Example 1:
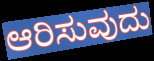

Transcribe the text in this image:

ಆರಿಸುವುದು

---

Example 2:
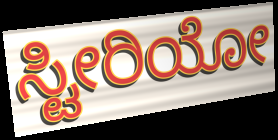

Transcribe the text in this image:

ಸ್ಟೀರಿಯೋ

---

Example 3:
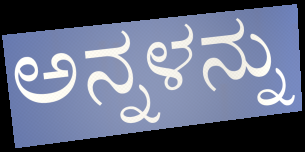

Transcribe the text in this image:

ಅನ್ನಳನ್ನು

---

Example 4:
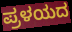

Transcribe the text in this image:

ಪ್ರಳಯದ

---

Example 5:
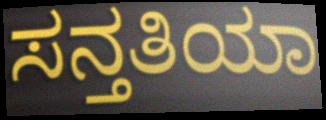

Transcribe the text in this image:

ಸನ್ತತಿಯಾ